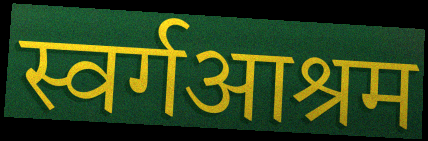
स्वर्गआश्रम